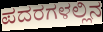
ಪದರಗಳಲ್ಲಿನ